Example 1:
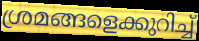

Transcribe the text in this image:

ശ്രമങ്ങളെക്കുറിച്ച്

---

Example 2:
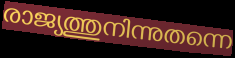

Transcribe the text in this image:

രാജ്യത്തുനിന്നുതന്നെ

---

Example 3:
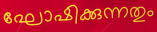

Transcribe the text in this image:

ഘോഷിക്കുന്നതും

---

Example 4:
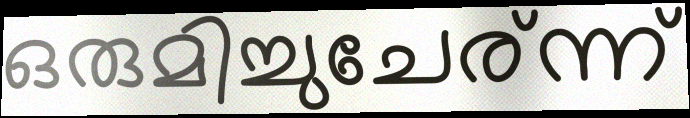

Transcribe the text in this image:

ഒരുമിച്ചുചേര്ന്ന്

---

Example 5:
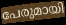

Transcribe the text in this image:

പേരുമായി